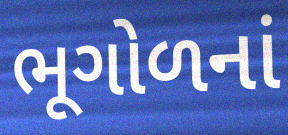
ભૂગોળનાં